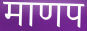
माणप